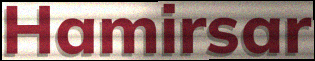
Hamirsar